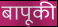
बापूकी